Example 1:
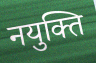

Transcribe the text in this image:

नयुक्ति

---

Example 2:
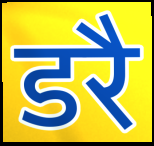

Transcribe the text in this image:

डरै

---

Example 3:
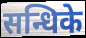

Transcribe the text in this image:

सन्धिके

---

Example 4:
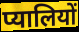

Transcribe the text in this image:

प्यालियों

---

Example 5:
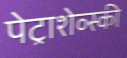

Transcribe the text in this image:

पेट्राशेव्स्की